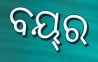
ବୟ୍‌ର